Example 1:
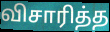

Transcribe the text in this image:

விசாரித்த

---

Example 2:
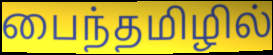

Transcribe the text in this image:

பைந்தமிழில்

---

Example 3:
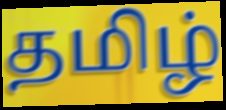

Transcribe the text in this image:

தமிழ்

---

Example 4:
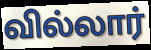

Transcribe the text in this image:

வில்லார்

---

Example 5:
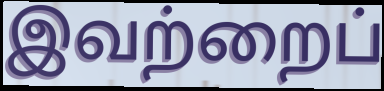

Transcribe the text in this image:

இவற்றைப்